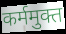
कर्ममुक्त